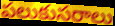
పలుకుసరాలు